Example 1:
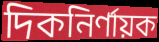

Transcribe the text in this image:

দিকনির্ণায়ক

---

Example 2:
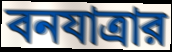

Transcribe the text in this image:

বনযাত্রার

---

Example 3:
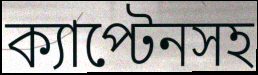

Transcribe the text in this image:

ক্যাপ্টেনসহ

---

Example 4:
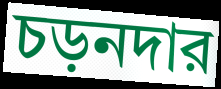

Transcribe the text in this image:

চড়নদার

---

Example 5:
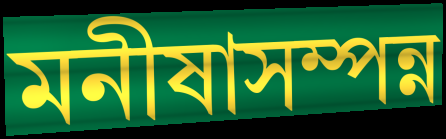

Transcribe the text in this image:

মনীষাসম্পন্ন